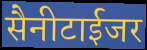
सैनीटाईजर